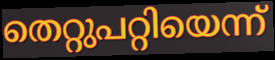
തെറ്റുപറ്റിയെന്ന്